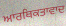
ਆਰਥਿਕਤਾਵਾਦ